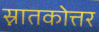
स्नातकोत्तर